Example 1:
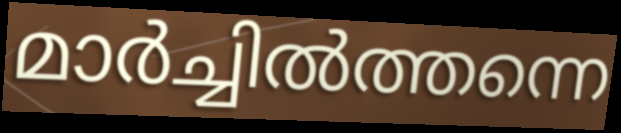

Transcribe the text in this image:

മാർച്ചിൽത്തന്നെ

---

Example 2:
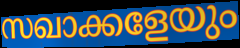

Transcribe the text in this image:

സഖാക്കളേയും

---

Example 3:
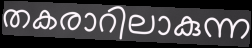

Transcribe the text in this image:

തകരാറിലാകുന്ന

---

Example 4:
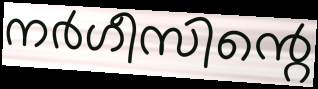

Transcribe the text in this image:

നർഗീസിന്റെ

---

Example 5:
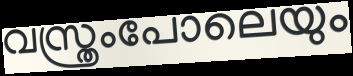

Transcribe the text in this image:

വസ്ത്രംപോലെയും